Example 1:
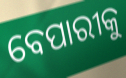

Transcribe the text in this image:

ବେପାରୀକୁ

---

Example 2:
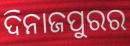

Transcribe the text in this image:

ଦିନାଜପୁରର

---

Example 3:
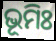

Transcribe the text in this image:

ଭୂମିଃ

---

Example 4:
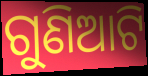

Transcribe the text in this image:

ଗୁଣିଆଟି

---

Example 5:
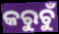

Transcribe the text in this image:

କରୁଚୁଁ